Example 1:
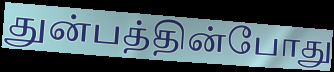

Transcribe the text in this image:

துன்பத்தின்போது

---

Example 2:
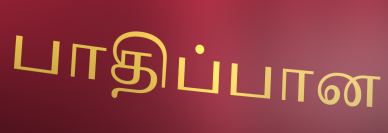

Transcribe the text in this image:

பாதிப்பான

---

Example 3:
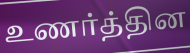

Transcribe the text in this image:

உணர்த்தின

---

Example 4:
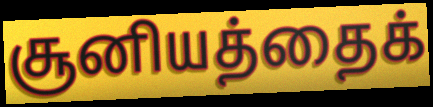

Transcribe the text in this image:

சூனியத்தைக்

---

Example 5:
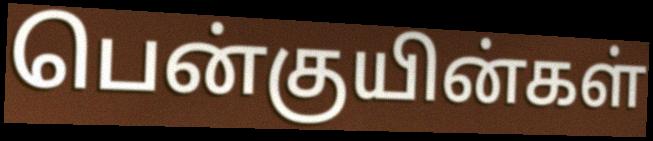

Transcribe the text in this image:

பென்குயின்கள்